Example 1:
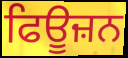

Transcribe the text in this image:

ਫਿਊਜ਼ਨ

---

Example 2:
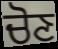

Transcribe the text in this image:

ਚੋਣ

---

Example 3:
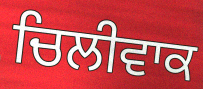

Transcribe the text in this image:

ਚਿਲੀਵਾਕ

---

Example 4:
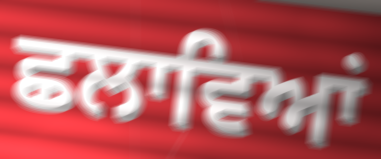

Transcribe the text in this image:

ਛਲਾਵਿਆਂ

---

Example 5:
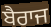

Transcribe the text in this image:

ਬੈਰਾਜ